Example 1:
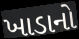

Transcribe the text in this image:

ખાડાનો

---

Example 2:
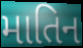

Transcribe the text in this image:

માતિન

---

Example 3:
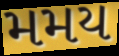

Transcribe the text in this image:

મમય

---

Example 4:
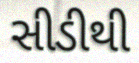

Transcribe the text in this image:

સીડીથી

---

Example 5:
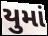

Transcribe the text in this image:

યુમાં